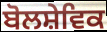
ਬੋਲਸ਼ੇਵਿਕ